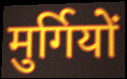
मुर्गियों